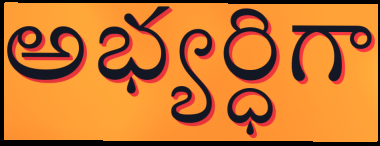
అభ్యర్ధిగా